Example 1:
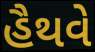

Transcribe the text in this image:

હૈથવે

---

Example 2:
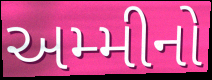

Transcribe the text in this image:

અમ્મીનો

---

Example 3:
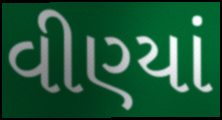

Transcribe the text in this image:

વીણ્યાં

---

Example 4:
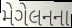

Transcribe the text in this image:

મેગેલનના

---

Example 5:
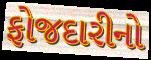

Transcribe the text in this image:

ફોજદારીનો